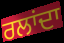
ਰਲਾਂਦਾ